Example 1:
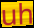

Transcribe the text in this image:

uh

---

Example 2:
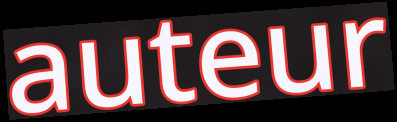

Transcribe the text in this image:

auteur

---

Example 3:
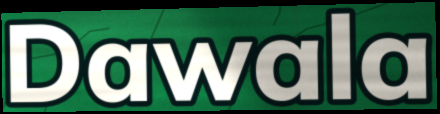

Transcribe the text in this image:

Dawala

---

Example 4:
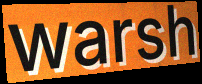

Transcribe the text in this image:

warsh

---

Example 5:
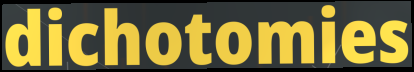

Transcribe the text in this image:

dichotomies